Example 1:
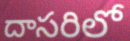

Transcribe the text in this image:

దాసరిలో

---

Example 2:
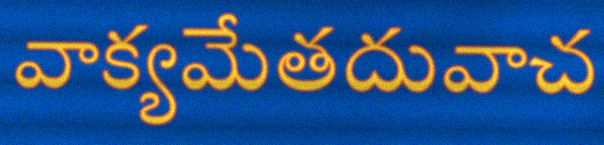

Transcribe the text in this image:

వాక్యమేతదువాచ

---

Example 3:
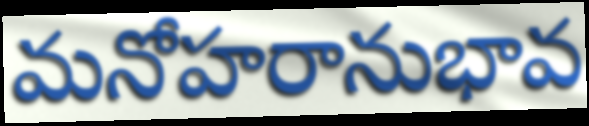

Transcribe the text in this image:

మనోహరానుభావ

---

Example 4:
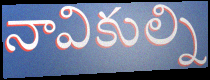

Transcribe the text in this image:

నావికుల్ని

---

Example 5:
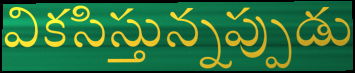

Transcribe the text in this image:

వికసిస్తున్నప్పుడు